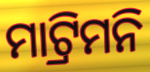
ମାଟ୍ରିମନି